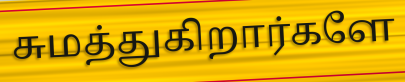
சுமத்துகிறார்களே